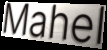
Mahel